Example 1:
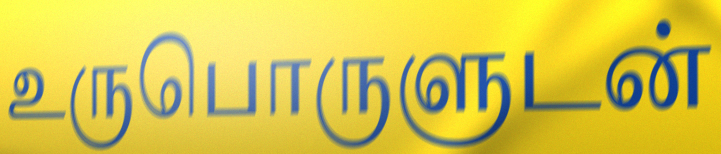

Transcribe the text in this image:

உருபொருளுடன்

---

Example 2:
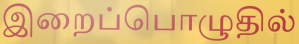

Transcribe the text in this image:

இறைப்பொழுதில்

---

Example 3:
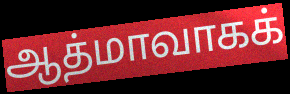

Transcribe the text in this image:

ஆத்மாவாகக்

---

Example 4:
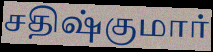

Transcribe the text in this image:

சதிஷ்குமார்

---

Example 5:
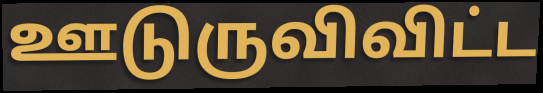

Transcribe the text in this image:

ஊடுருவிவிட்ட